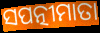
ସପତ୍ନୀମାତା